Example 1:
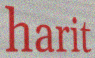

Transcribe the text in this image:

harit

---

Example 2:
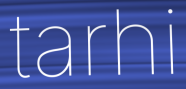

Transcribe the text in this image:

tarhi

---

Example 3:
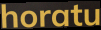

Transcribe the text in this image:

horatu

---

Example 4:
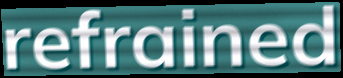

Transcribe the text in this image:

refrained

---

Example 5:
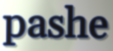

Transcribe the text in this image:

pashe